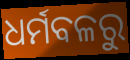
ଧର୍ମବଳରୁ